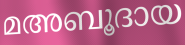
മഅബൂദായ